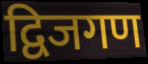
द्विजगण